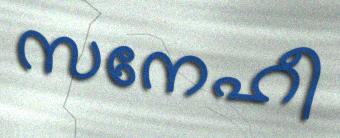
സനേഹീ